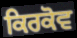
ਕਿਰਕੋਵ